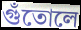
গুঁতোলে